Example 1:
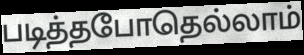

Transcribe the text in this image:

படித்தபோதெல்லாம்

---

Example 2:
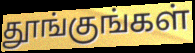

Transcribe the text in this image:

தூங்குங்கள்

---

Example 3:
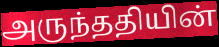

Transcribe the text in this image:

அருந்ததியின்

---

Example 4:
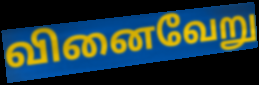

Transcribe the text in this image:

வினைவேறு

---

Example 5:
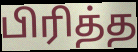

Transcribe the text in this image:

பிரித்த